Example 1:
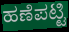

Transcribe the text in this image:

ಹಣೆಪಟ್ಟಿ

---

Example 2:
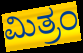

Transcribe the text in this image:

ಮಿತ್ರಂ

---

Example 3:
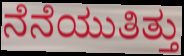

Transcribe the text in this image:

ನೆನೆಯುತಿತ್ತು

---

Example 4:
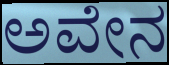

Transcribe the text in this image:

ಅವೇನ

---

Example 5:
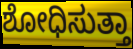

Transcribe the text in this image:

ಶೋಧಿಸುತ್ತಾ